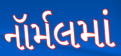
નૉર્મલમાં